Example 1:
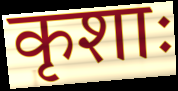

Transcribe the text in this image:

कृशाः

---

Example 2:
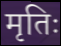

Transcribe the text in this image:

मृतिः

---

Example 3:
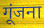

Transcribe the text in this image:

गूंजना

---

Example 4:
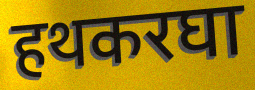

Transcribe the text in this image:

हथकरघा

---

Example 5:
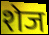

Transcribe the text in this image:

शेज